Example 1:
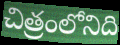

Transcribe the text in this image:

చిత్రంలోనిది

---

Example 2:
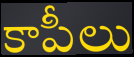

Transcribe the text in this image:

కాపీలు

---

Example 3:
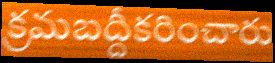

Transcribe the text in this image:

క్రమబద్దీకరించారు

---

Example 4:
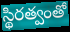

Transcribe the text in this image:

స్థిరత్వంతో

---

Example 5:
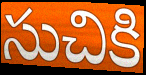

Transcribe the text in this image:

సుచికి